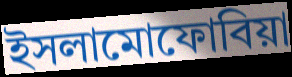
ইসলামোফোবিয়া